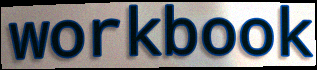
workbook